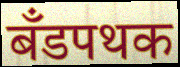
बँडपथक